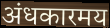
अंधकारमय